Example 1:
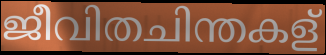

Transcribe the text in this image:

ജീവിതചിന്തകള്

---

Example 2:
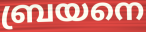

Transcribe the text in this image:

ബ്രയനെ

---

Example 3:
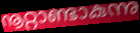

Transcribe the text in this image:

നൂറ്റാണ്ടാകുന്നു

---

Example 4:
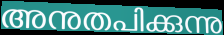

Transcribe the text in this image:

അനുതപിക്കുന്നു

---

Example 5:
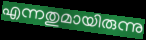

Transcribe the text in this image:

എന്നതുമായിരുന്നു